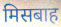
मिसबाह